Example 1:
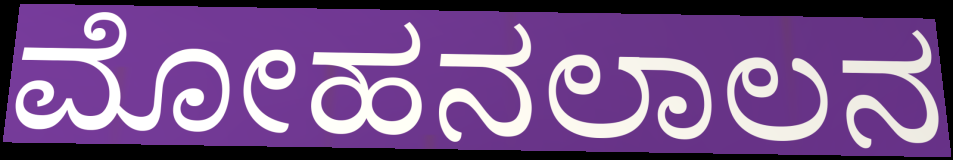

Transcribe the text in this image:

ಮೋಹನಲಾಲನ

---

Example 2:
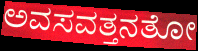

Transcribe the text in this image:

ಅವಸವತ್ತನತೋ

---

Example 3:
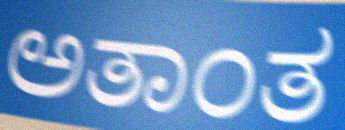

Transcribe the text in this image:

ಅತಾಂತ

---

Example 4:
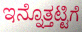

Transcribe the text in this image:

ಇನ್ನೊತ್ತಟ್ಟಿಗೆ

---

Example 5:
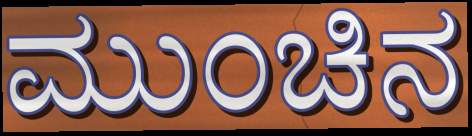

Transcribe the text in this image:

ಮುಂಚಿನ